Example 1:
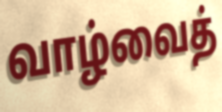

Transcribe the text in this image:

வாழ்வைத்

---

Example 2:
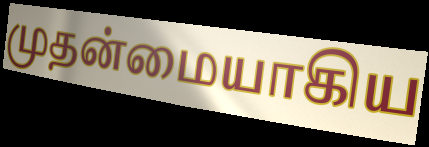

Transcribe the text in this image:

முதன்மையாகிய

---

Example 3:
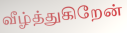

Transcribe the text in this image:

வீழ்த்துகிறேன்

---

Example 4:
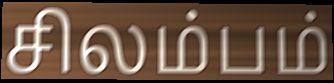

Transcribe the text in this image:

சிலம்பம்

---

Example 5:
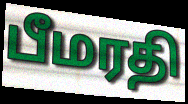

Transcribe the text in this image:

பீமரதி